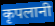
कृपलानी